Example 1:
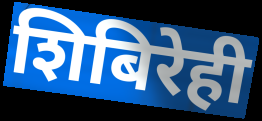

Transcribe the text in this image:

शिबिरेही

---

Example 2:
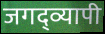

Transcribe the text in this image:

जगद्व्यापी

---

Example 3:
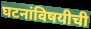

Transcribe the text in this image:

घटनांविषयीची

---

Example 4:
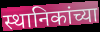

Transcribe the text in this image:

स्थानिकांच्या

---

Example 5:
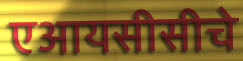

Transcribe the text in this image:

एआयसीसीचे